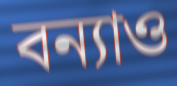
বন্যাও